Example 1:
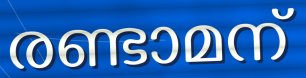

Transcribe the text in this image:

രണ്ടാമന്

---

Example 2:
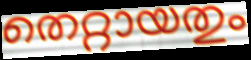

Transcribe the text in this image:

തെറ്റായതും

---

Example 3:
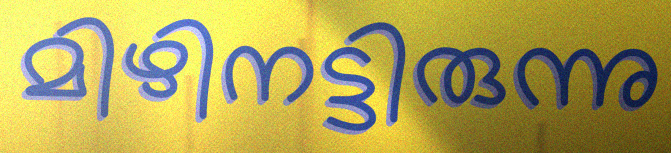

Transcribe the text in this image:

മിഴിനട്ടിരുന്നു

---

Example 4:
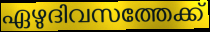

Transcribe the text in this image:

ഏഴുദിവസത്തേക്ക്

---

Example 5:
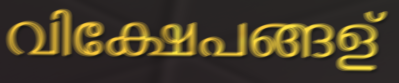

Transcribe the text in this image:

വിക്ഷേപങ്ങള്